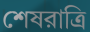
শেষরাত্রি